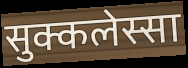
सुक्कलेस्सा